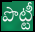
పొట్టీ